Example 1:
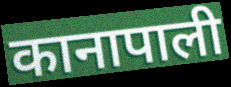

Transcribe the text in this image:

कानापाली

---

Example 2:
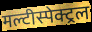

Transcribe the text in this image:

मल्टीस्पेक्ट्रल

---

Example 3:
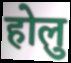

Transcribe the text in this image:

होलु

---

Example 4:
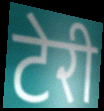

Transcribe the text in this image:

टेरी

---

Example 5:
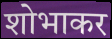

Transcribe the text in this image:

शोभाकर